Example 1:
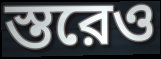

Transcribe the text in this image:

স্তরেও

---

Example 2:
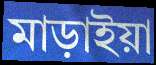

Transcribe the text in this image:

মাড়াইয়া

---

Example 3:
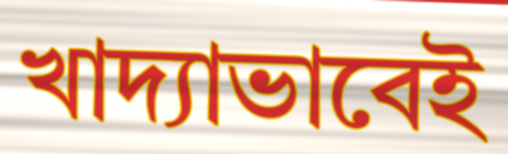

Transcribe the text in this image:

খাদ্যাভাবেই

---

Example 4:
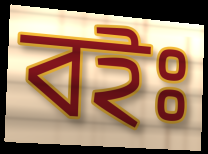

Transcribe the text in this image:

বইঃ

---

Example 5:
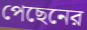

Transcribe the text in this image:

পেছেনের